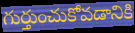
గుర్తుంచుకోవడానికి